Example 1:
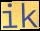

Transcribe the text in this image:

ik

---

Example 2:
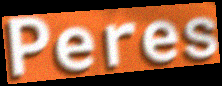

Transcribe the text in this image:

Peres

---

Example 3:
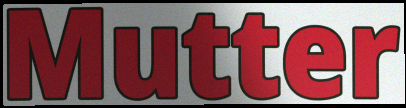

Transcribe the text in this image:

Mutter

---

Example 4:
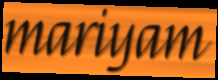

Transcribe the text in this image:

mariyam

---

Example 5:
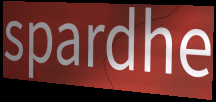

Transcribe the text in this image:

spardhe